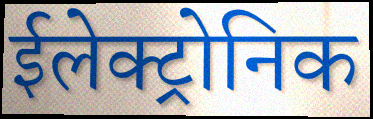
ईलेक्ट्रोनिक